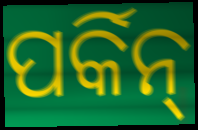
ପର୍କିନ୍